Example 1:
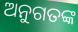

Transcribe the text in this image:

ଅନୁଗତଙ୍କ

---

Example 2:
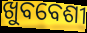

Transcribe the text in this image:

ଖୁବବେଶୀ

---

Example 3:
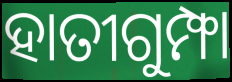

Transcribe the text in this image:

ହାତୀଗୁମ୍ଫା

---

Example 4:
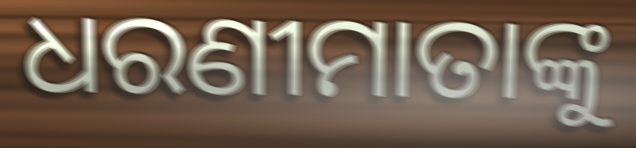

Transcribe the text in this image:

ଧରଣୀମାତାଙ୍କୁ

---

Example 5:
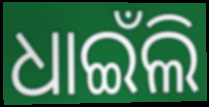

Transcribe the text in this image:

ଧାଇଁଲି